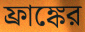
ফ্রাঙ্কের